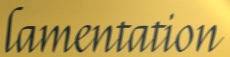
lamentation